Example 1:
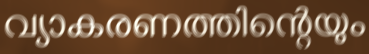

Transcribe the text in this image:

വ്യാകരണത്തിന്റെയും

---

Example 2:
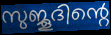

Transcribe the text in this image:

സുജൂദിന്റെ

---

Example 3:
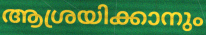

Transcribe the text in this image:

ആശ്രയിക്കാനും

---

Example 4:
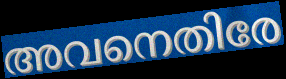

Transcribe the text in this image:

അവനെതിരേ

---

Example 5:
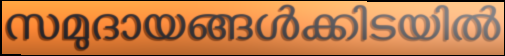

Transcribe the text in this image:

സമുദായങ്ങൾക്കിടയിൽ